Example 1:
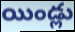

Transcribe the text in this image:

యిండ్లు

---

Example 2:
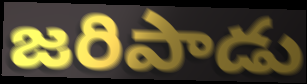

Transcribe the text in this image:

జరిపాడు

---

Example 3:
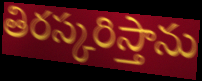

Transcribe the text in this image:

తిరస్కరిస్తాను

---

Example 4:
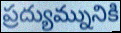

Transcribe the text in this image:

ప్రద్యుమ్నునికి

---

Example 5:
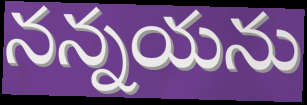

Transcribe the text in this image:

నన్నయను